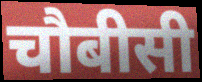
चौबीसी